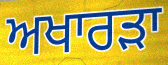
ਅਖਾਰੜਾ